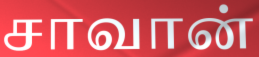
சாவான்